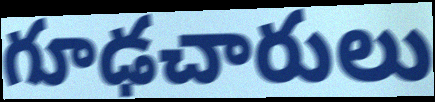
గూఢచారులు